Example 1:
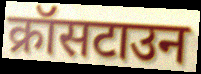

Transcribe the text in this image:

क्रॉसटाउन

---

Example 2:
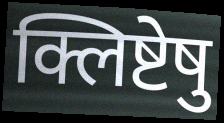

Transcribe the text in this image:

क्लिष्टेषु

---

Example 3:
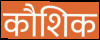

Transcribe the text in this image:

कौशिक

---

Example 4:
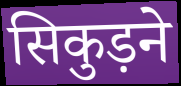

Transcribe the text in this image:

सिकुड़ने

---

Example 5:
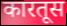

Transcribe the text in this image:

कारतूस